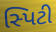
સ્પિટી